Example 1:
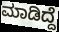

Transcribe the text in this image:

ಮಾಡಿದ್ದೆ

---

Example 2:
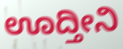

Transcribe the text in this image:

ಊದ್ತೀನಿ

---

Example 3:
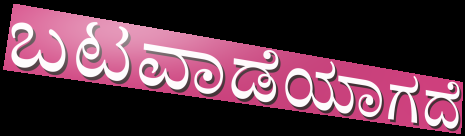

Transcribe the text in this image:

ಬಟವಾಡೆಯಾಗದೆ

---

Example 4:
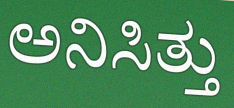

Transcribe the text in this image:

ಅನಿಸಿತ್ತು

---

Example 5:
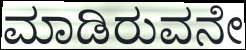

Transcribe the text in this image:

ಮಾಡಿರುವನೇ